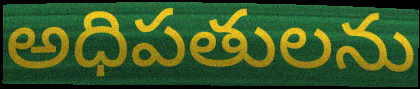
అధిపతులను